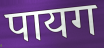
पायग